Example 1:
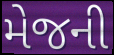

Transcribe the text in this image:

મેજની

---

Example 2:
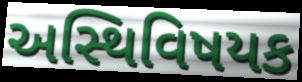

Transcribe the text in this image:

અસ્થિવિષયક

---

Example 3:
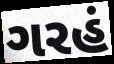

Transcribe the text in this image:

ગરહં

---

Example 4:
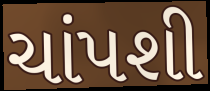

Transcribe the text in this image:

ચાંપશી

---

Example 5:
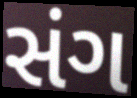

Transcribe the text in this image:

સંગ